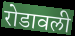
रोडावली